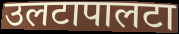
उलटापालटा